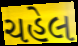
ચહેલ